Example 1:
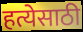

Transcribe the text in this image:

हत्येसाठी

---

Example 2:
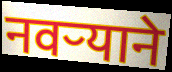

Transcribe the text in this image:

नवऱ्याने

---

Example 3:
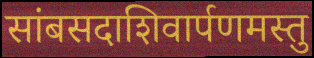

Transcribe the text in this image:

सांबसदाशिवार्पणमस्तु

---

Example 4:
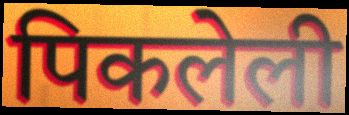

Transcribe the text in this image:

पिकलेली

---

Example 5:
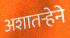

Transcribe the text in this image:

अशातऱ्हेने